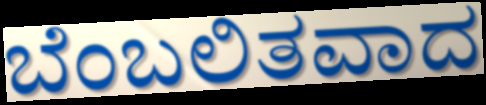
ಬೆಂಬಲಿತವಾದ